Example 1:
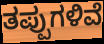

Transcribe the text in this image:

ತಪ್ಪುಗಳಿವೆ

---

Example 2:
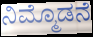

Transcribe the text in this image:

ನಿಮ್ಮೊಡನೆ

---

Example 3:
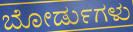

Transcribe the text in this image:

ಬೋರ್ಡುಗಳು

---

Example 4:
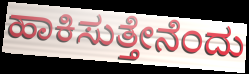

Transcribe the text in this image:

ಹಾಕಿಸುತ್ತೇನೆಂದು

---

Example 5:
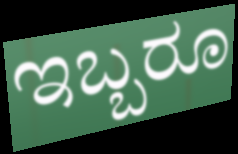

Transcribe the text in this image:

ಇಬ್ಬರೂ